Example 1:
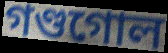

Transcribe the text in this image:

গণ্ডগোল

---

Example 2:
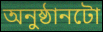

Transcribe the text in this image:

অনুষ্ঠানটো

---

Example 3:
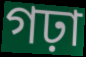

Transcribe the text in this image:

গঢ়া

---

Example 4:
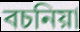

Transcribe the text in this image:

বচনিয়া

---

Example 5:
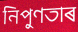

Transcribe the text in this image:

নিপুণতাৰ